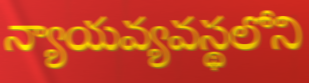
న్యాయవ్యవస్థలోని